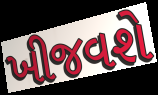
ખીજવશે